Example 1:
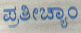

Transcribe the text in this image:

ಪ್ರತೀಚ್ಯಾಂ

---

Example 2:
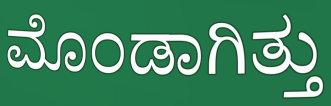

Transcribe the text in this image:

ಮೊಂಡಾಗಿತ್ತು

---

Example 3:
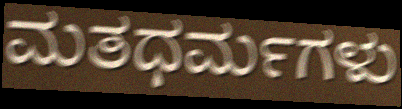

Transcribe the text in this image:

ಮತಧರ್ಮಗಳು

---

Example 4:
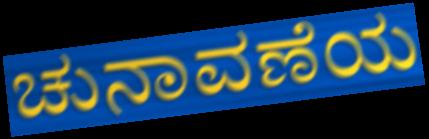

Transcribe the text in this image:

ಚುನಾವಣೆಯ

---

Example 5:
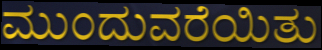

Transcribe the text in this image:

ಮುಂದುವರೆಯಿತು